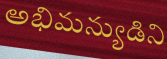
అభిమన్యుడిని